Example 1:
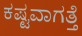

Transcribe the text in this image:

ಕಷ್ಟವಾಗತ್ತೆ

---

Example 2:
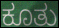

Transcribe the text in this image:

ಕೂತು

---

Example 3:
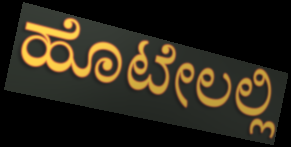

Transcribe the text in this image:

ಹೊಟೇಲಲ್ಲಿ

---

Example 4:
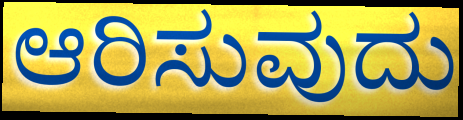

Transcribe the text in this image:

ಆರಿಸುವುದು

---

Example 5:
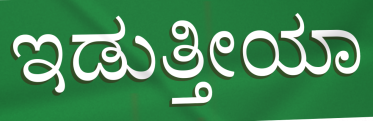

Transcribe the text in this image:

ಇಡುತ್ತೀಯಾ